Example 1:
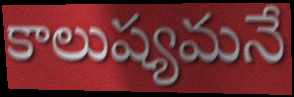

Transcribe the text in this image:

కాలుష్యమనే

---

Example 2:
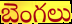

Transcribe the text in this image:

బెంగలు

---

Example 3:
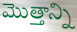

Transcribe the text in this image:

మొత్తాన్ని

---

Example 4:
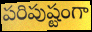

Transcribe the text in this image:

పరిపుష్టంగా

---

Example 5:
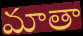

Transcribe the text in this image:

మాతా